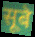
सूबे